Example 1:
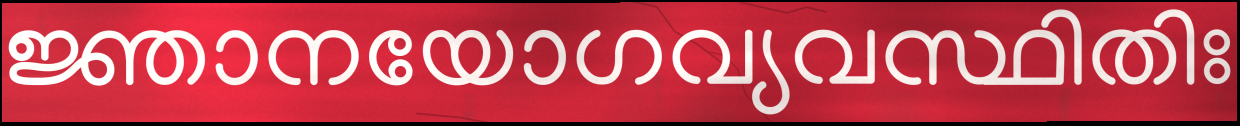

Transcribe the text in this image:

ജ്ഞാനയോഗവ്യവസ്ഥിതിഃ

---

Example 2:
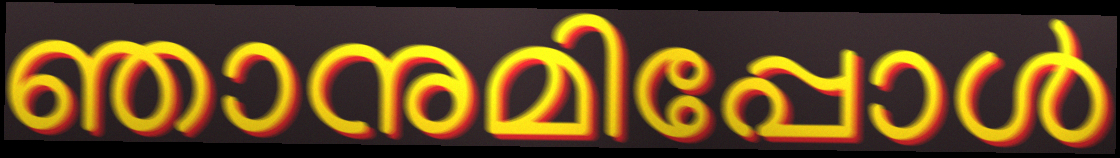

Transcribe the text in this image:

ഞാനുമിപ്പോൾ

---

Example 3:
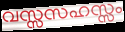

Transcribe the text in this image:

വസ്സസഹസ്സം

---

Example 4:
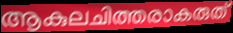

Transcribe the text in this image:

ആകുലചിത്തരാകരുത്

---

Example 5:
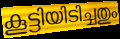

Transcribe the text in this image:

കൂട്ടിയിടിച്ചതും